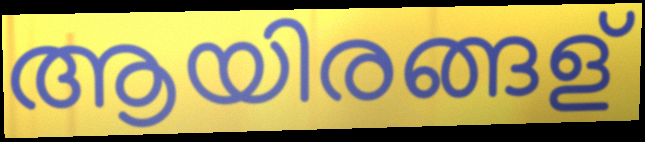
ആയിരങ്ങള്